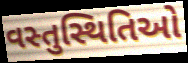
વસ્તુસ્થિતિઓ